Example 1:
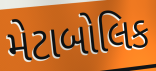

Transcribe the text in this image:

મેટાબોલિક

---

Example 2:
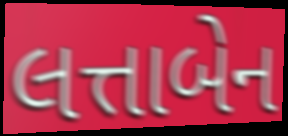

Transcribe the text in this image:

લત્તાબેન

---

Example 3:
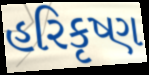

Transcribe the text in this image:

હરિકૃષ્ણ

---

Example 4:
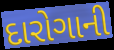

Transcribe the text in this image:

દારોગાની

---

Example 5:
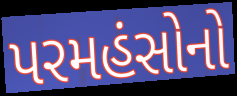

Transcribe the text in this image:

પરમહંસોનો